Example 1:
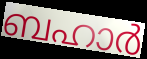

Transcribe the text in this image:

ബഹാർ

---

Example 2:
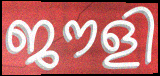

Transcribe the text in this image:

ജൗളി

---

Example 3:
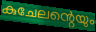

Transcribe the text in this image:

കുചേലന്റെയും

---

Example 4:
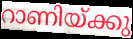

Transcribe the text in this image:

റാണിയ്ക്കു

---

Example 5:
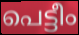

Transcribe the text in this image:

പെട്ടീം